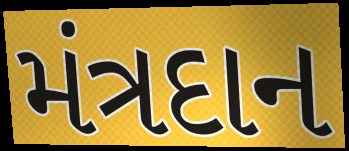
મંત્રદાન